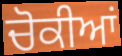
ਚੋਕੀਆਂ